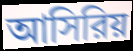
আসিরিয়